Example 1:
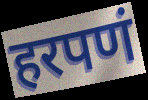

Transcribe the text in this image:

हरपणं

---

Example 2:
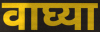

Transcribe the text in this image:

वाघ्या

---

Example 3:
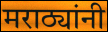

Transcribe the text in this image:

मराठ्यांनी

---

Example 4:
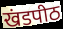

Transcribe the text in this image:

खंडपीठ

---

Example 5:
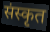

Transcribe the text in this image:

संस्‍कृत